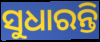
ସୁଧାରନ୍ତି